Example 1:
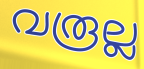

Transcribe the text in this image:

വരൂല്ല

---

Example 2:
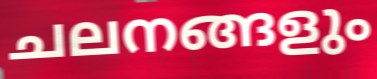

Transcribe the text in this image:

ചലനങ്ങളും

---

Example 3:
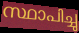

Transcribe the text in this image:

സ്ഥാപിച്ചു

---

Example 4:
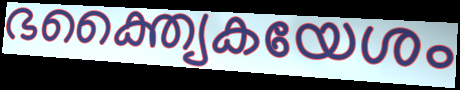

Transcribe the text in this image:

ഭക്ത്യൈകയേശം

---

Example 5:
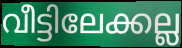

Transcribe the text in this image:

വീട്ടിലേക്കല്ല